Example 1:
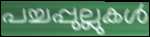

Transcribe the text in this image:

പച്ചപ്പുല്ലുകൾ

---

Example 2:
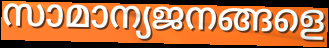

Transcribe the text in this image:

സാമാന്യജനങ്ങളെ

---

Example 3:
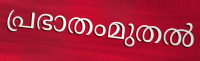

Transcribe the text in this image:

പ്രഭാതംമുതൽ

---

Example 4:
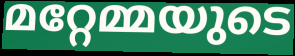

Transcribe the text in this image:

മറ്റേമ്മയുടെ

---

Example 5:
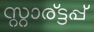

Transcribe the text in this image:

സ്റ്റാര്ട്ടപ്പ്